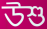
উশু